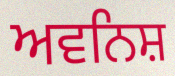
ਅਵਨਿਸ਼